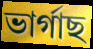
ভাৰ্গাছ